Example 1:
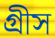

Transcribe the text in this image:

গ্রীস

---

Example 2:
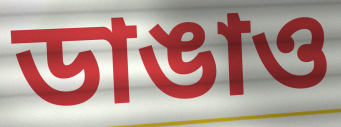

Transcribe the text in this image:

ডাঙাও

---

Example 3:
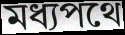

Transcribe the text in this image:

মধ্যপথে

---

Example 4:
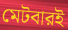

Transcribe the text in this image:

মেটবারই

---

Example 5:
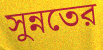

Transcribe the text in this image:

সুন্নতের